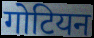
गोटियन